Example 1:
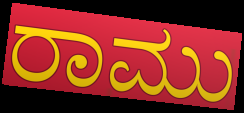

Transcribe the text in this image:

ರಾಮು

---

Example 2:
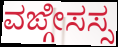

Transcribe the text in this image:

ವಙ್ಗೀಸಸ್ಸ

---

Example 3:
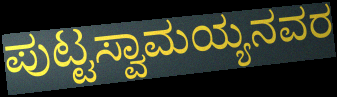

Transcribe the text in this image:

ಪುಟ್ಟಸ್ವಾಮಯ್ಯನವರ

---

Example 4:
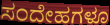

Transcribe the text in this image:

ಸಂದೇಹಗಳೂ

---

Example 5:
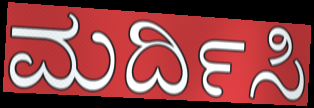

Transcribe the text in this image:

ಮರ್ದಿಸಿ